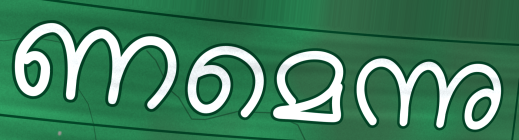
ണമെന്നു